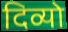
दिव्यो